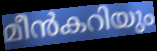
മീൻകറിയും